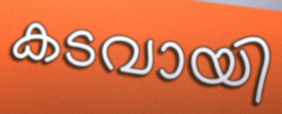
കടവായി